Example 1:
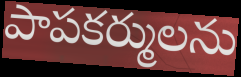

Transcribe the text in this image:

పాపకర్ములను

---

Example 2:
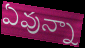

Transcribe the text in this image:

ఏవున్నా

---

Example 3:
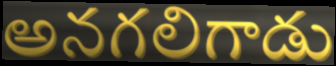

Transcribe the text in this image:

అనగలిగాడు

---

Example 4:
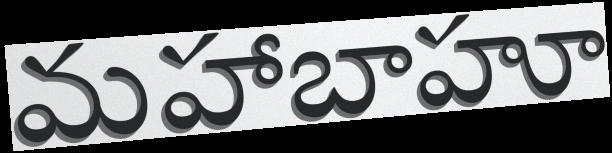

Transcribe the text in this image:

మహాబాహూ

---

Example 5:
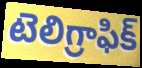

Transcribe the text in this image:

టెలిగ్రాఫిక్